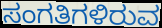
ಸಂಗತಿಗಳಿರುವ